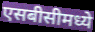
एसबीसीमध्ये